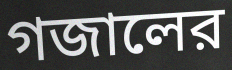
গজালের